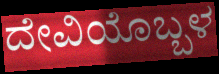
ದೇವಿಯೊಬ್ಬಳ